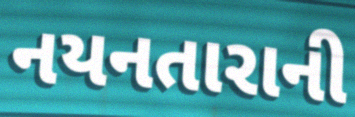
નયનતારાની